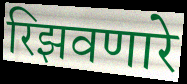
रिझवणारे